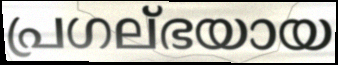
പ്രഗല്ഭയായ